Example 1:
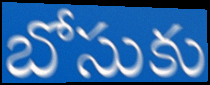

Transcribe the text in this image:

బోసుకు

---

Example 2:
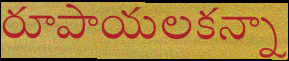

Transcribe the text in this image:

రూపాయలకన్నా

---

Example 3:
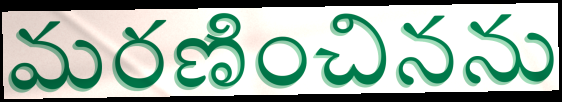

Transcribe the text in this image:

మరణించినను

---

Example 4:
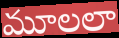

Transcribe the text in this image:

మూలలా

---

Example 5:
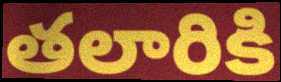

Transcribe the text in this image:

తలారికి